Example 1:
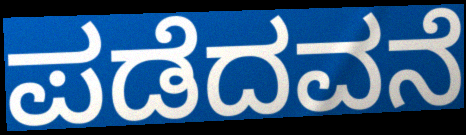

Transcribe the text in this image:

ಪಡೆದವನೆ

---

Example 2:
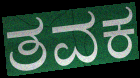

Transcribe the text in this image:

ತವಕ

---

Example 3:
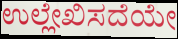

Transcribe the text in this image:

ಉಲ್ಲೇಖಿಸದೆಯೇ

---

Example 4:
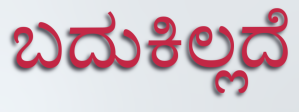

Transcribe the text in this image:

ಬದುಕಿಲ್ಲದೆ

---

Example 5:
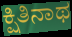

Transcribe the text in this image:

ಕ್ಷಿತಿನಾಥ